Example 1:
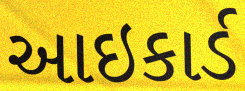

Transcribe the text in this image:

આઇકાર્ડ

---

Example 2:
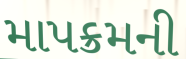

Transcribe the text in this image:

માપક્રમની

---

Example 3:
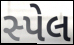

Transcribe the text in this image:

સ્પેલ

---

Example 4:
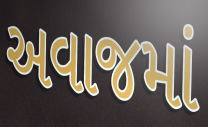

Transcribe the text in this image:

અવાજમાં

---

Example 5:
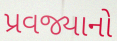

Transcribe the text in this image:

પ્રવજ્યાનો